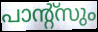
പാന്റ്സും